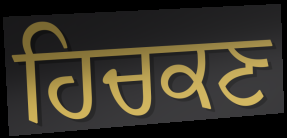
ਹਿਚਕਣ